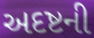
અદષ્ટની